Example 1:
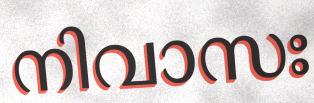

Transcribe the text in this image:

നിവാസഃ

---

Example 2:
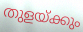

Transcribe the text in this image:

തുളയ്ക്കും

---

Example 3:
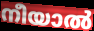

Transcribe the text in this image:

നീയാൽ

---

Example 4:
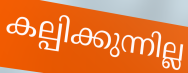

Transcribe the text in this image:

കല്പിക്കുന്നില്ല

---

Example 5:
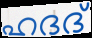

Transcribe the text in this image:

ഹദദ്